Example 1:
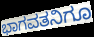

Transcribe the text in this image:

ಭಾಗವತನಿಗೂ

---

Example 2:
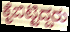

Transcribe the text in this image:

ಕೈಬಿಟ್ಟಿದ್ದರು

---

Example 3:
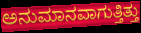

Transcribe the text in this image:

ಅನುಮಾನವಾಗುತ್ತಿತ್ತು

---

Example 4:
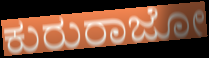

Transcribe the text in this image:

ಕುರುರಾಜೋ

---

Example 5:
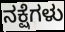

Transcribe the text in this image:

ನಕ್ಷೆಗಳು